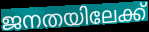
ജനതയിലേക്ക്